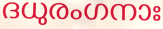
ദധുരംഗനാഃ